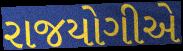
રાજયોગીએ